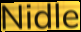
Nidle